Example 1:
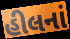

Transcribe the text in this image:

હીલનાં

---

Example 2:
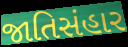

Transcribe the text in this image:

જાતિસંહાર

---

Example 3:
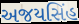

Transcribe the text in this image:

અજયસિંહ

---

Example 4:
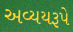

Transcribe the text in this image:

અવ્યયરૂપે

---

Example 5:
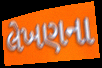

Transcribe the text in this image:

લેખણના